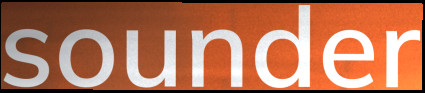
sounder